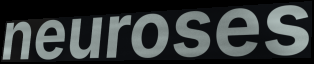
neuroses